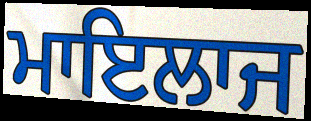
ਮਾਇਲਾਜ